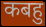
कबहु